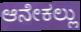
ಆನೇಕಲ್ಲು